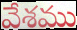
వేశము